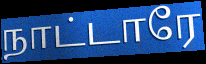
நாட்டாரே